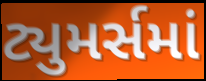
ટ્યુમર્સમાં